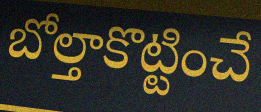
బోల్తాకొట్టించే